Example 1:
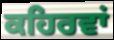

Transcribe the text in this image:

ਕਹਿਰਵਾਂ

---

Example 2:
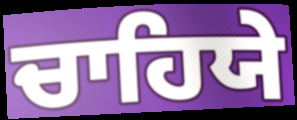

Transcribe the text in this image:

ਚਾਹਿਯੇ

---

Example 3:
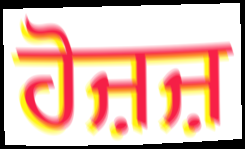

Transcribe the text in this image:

ਹੋਜ਼ਜ਼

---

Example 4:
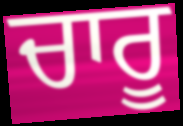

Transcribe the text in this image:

ਚਾਰੂ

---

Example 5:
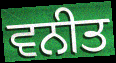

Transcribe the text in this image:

ਵਨੀਤ